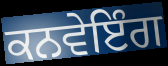
ਕਨਵੇਇੰਗ